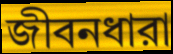
জীবনধারা